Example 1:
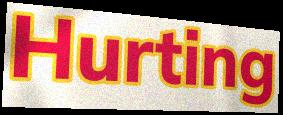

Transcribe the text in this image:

Hurting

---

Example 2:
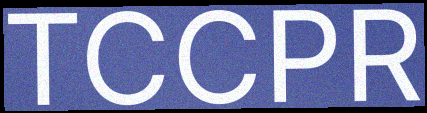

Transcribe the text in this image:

TCCPR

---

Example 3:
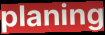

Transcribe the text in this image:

planing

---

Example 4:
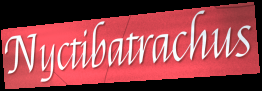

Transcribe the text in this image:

Nyctibatrachus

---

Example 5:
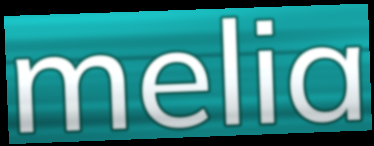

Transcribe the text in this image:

melia